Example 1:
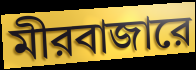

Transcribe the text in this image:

মীরবাজারে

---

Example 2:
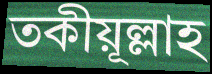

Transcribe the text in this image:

তকীয়ূল্লাহ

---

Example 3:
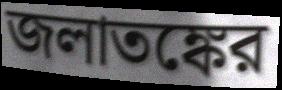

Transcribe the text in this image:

জলাতঙ্কের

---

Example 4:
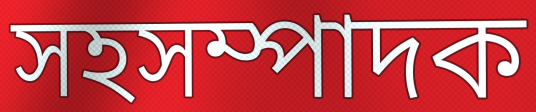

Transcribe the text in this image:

সহসম্পাদক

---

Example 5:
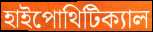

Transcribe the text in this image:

হাইপোথিটিক্যাল